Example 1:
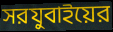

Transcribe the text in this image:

সরযুবাইয়ের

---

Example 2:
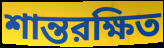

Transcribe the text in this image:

শান্তরক্ষিত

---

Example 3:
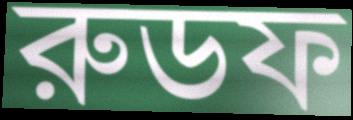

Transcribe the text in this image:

রুডফ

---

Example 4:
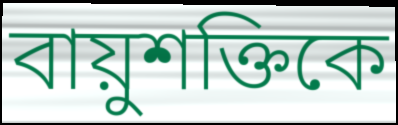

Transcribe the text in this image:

বায়ুশক্তিকে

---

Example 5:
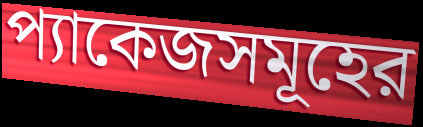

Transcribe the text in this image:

প্যাকেজসমূহের